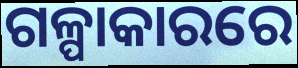
ଗଳ୍ପାକାରରେ